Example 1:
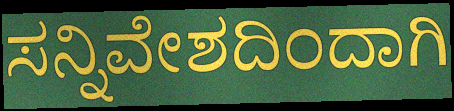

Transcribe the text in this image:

ಸನ್ನಿವೇಶದಿಂದಾಗಿ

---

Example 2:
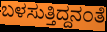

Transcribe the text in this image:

ಬಳಸುತ್ತಿದ್ದನಂತೆ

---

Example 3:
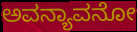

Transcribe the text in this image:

ಅವನ್ಯಾವನೋ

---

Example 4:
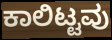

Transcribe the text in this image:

ಕಾಲಿಟ್ಟವು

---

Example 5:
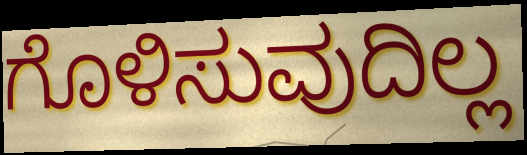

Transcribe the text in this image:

ಗೊಳಿಸುವುದಿಲ್ಲ